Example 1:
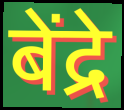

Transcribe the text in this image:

बेंद्रे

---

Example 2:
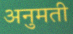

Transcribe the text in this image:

अनुमती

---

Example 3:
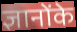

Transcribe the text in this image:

ज्ञानोंके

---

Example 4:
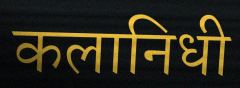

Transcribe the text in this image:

कलानिधी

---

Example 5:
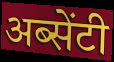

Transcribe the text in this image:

अब्सेंटी